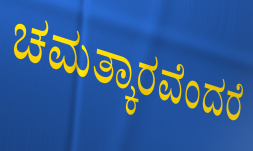
ಚಮತ್ಕಾರವೆಂದರೆ